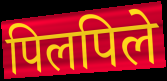
पिलपिले